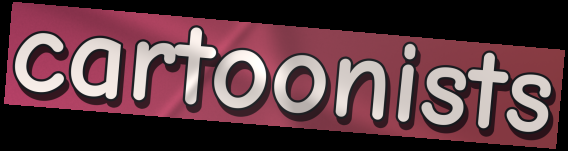
cartoonists